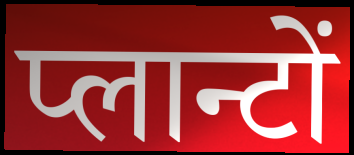
प्लान्टों